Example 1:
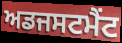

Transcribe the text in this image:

ਅਡਜਸਟਮੈਂਟ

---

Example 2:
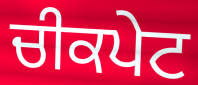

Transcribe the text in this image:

ਚੀਕਪੇਟ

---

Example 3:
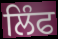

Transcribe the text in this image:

ਲਿੰਫ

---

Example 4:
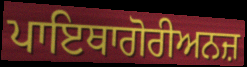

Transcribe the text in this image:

ਪਾਇਥਾਗੋਰੀਅਨਜ਼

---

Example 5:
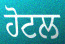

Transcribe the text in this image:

ਹੋਟਲ